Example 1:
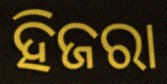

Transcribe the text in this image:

ହିଜରା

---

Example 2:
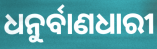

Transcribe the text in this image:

ଧନୁର୍ବାଣଧାରୀ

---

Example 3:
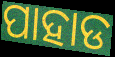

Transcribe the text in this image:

ପାହାଡ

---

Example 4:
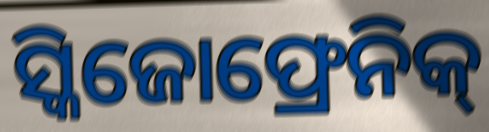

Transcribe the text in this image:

ସ୍କିଜୋଫ୍ରେନିକ୍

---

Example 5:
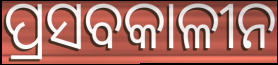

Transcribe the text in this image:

ପ୍ରସବକାଳୀନ